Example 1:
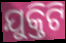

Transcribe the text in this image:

ଯୁକ୍ତିଟି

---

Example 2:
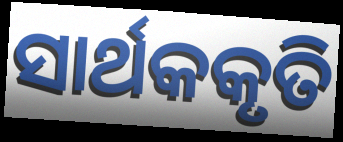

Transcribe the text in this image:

ସାର୍ଥକକୃତି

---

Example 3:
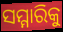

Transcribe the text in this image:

ସମ୍ମାରିକୁ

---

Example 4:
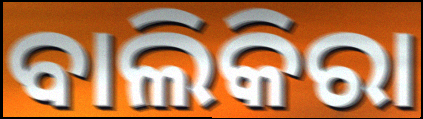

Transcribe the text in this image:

ବାଲିକିରା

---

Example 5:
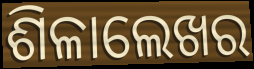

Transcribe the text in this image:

ଶିଳାଲେଖର